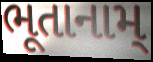
ભૂતાનામ્